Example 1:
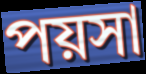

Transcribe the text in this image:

পয়সা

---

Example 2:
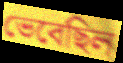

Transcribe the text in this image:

ভেবেছিল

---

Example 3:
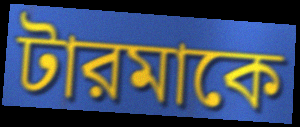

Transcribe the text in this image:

টারমাকে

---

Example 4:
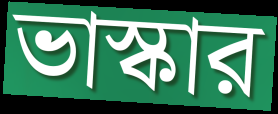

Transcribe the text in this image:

ভাস্কার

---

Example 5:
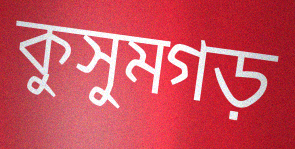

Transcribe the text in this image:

কুসুমগড়